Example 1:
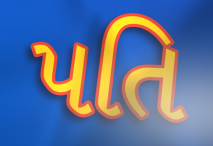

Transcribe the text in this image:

પતિ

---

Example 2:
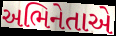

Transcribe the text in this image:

અભિનેતાએ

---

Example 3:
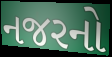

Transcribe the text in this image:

નજરનો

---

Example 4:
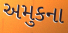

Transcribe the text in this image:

અમુકના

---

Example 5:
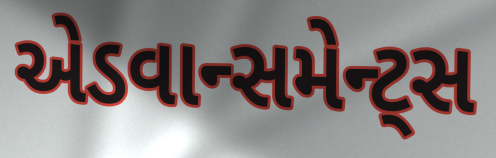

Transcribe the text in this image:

એડવાન્સમેન્ટ્સ